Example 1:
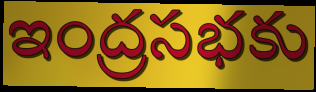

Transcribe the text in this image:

ఇంద్రసభకు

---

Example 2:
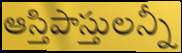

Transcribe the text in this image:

ఆస్తిపాస్తులన్నీ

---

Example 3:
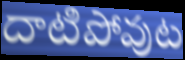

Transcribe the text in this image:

దాటిపోవుట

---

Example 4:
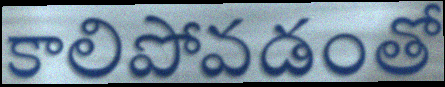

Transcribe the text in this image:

కాలిపోవడంతో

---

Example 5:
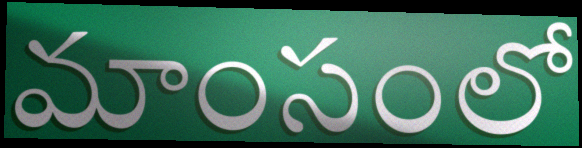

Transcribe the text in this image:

మాంసంలో